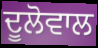
ਦੂਲੋਵਾਲ